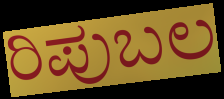
ರಿಪುಬಲ